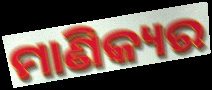
ମାଣିକ୍ୟର